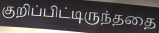
குறிப்பிட்டிருந்ததை